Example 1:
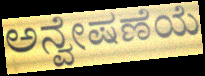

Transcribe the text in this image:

ಅನ್ವೇಷಣೆಯೆ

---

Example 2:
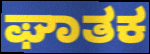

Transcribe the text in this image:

ಘಾತಕ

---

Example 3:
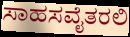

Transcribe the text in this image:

ಸಾಹಸವೈತರಲಿ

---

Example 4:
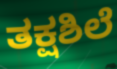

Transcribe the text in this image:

ತಕ್ಷಶಿಲೆ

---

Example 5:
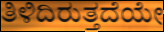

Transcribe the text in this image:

ತಿಳಿದಿರುತ್ತದೆಯೇ